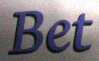
Bet